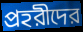
প্রহরীদের